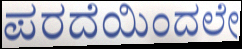
ಪರದೆಯಿಂದಲೇ